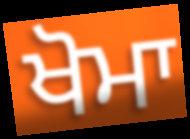
ਖੋਮਾ